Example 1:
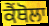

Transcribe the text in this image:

ਕੈਂਥੋਲਾ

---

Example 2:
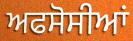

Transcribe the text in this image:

ਅਫਸੋਸੀਆਂ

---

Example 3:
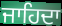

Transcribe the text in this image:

ਜਾਹਿਦਾ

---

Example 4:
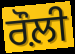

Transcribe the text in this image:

ਰੌਲ਼ੀ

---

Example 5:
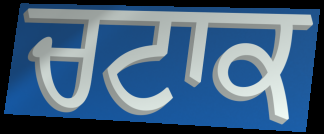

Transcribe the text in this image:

ਚਟਾਕ